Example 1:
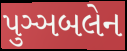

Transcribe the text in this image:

પુઞ્ઞબલેન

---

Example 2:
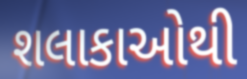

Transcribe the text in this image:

શલાકાઓથી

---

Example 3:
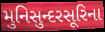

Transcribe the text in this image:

મુનિસુન્દરસૂરિના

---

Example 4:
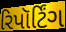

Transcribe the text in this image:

રિપૉર્ટિંગ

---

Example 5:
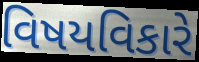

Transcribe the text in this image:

વિષયવિકારે